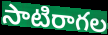
సాటిరాగల